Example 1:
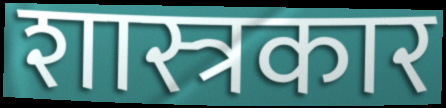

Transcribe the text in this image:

शास्त्रकार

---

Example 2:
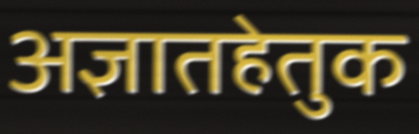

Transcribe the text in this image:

अज्ञातहेतुक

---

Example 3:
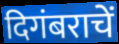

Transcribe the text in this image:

दिगंबराचें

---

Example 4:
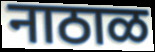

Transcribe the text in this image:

नाठाळ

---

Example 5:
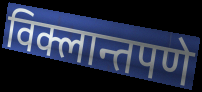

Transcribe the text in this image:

विक्लान्तपणे